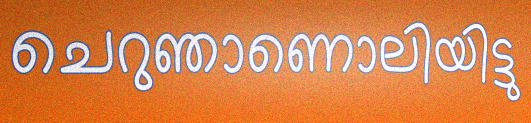
ചെറുഞാണൊലിയിട്ടു